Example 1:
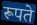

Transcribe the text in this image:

रूपते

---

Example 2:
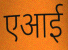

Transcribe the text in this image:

एआई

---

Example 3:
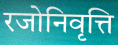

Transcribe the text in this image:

रजोनिवृत्ति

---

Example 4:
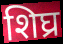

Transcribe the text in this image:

शिघ्र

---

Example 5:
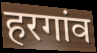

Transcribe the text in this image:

हरगांव